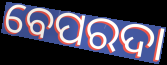
ବେପରଦା